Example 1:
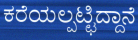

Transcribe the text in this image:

ಕರೆಯಲ್ಪಟ್ಟಿದ್ದಾನೆ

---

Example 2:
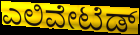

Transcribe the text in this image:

ಎಲಿವೇಟೆಡ್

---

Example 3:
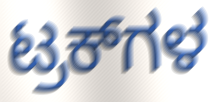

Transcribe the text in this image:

ಟ್ರಕ್‌ಗಳ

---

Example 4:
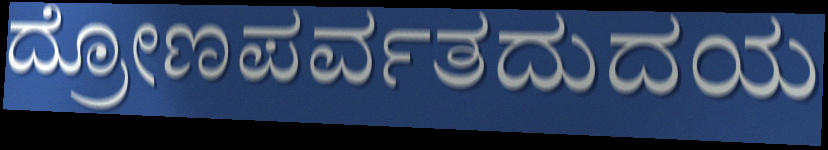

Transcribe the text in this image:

ದ್ರೋಣಪರ್ವತದುದಯ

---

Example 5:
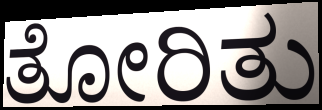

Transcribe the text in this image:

ತೋರಿತು